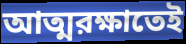
আত্মরক্ষাতেই